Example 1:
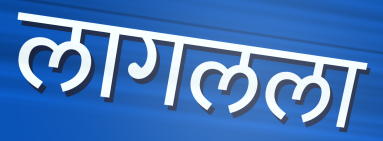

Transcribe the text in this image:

लागलला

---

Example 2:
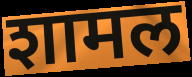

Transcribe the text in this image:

शामल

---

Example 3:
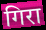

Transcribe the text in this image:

गिरा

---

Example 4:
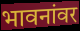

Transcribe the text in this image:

भावनांवर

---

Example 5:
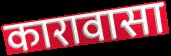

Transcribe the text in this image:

कारावासा